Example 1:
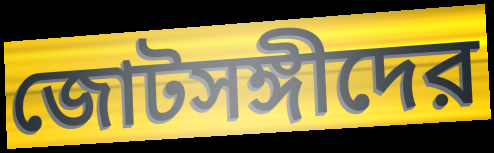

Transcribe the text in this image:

জোটসঙ্গীদের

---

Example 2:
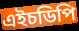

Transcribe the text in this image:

এইচডিপি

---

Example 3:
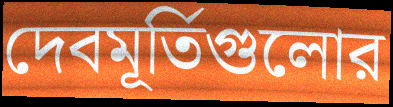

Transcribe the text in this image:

দেবমূর্তিগুলোর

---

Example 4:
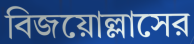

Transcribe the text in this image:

বিজয়োল্লাসের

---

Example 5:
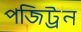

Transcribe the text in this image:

পজিট্রন